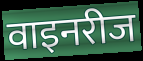
वाइनरीज